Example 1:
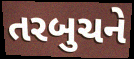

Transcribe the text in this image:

તરબુચને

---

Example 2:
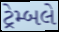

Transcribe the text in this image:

ટ્રેમ્બલે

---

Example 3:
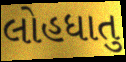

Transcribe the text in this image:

લોહધાતુ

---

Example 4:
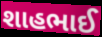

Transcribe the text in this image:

શાહભાઈ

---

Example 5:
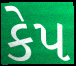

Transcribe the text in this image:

કેપ